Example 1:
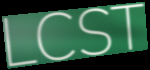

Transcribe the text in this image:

LCST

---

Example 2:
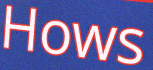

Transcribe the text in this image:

Hows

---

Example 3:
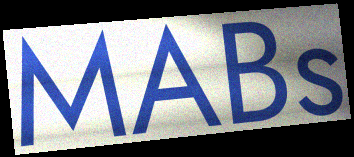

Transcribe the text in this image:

MABs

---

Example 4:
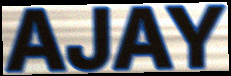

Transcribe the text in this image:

AJAY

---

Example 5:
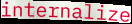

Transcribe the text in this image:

internalize